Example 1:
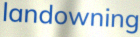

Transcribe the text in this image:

landowning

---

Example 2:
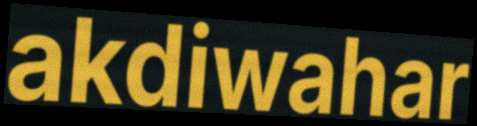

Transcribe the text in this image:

akdiwahar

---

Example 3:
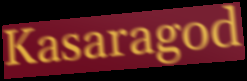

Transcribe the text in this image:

Kasaragod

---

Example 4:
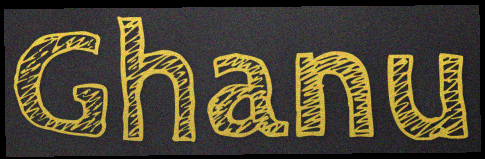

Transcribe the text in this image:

Ghanu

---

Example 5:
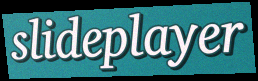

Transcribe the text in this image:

slideplayer